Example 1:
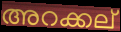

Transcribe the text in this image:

അറക്കല്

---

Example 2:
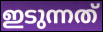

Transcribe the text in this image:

ഇടുന്നത്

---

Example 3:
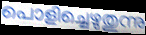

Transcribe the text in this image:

പൊളിച്ചെഴുതുന്നു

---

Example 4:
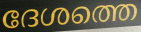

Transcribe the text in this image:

ദേശത്തെ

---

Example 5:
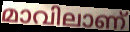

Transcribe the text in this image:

മാവിലാണ്